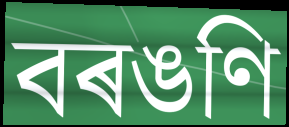
বৰঙণি